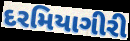
દરમિયાગીરી